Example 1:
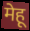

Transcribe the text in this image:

मेहू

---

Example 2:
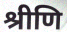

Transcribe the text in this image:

श्रीणि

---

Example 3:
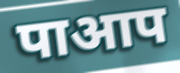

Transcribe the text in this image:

पाआप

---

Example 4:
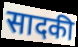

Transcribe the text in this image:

सादकी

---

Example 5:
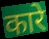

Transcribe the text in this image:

कारे